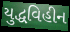
યુદ્ધવિહીન